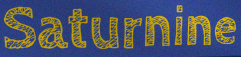
Saturnine